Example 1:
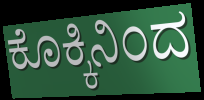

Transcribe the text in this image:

ಕೊಕ್ಕಿನಿಂದ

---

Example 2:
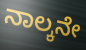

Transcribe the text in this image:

ನಾಲ್ಕನೇ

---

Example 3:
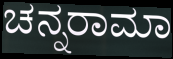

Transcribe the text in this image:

ಚನ್ನರಾಮಾ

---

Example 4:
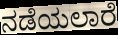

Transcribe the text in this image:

ನಡೆಯಲಾರೆ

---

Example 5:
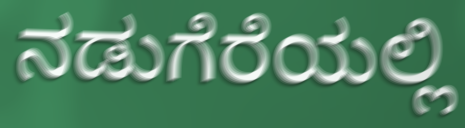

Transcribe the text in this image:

ನಡುಗೆರೆಯಲ್ಲಿ